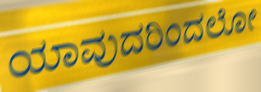
ಯಾವುದರಿಂದಲೋ